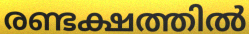
രണ്ടക്ഷത്തിൽ